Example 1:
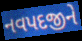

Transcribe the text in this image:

નવપદજીને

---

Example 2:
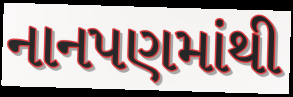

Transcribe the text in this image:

નાનપણમાંથી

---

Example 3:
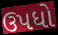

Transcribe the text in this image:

ઉપધો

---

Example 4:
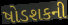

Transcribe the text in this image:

ષોડશકની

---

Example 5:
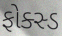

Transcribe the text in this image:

ફોક્સ્ડ